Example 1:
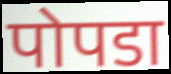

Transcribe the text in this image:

पोपडा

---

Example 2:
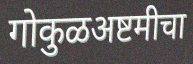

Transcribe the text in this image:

गोकुळअष्टमीचा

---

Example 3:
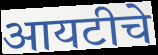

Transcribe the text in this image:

आयटीचे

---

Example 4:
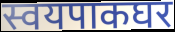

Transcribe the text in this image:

स्वयपाकघर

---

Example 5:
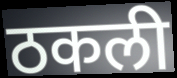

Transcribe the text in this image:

ठकली